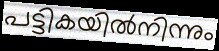
പട്ടികയിൽനിന്നും